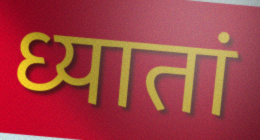
ध्यातां